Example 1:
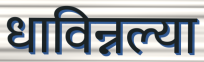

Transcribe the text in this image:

धाविन्नल्या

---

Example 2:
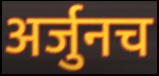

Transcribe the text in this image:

अर्जुनच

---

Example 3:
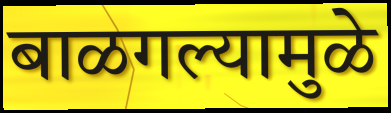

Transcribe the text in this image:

बाळगल्यामुळे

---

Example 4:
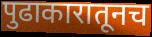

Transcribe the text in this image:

पुढाकारातूनच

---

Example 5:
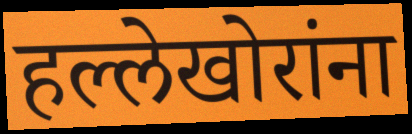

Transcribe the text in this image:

हल्लेखोरांना